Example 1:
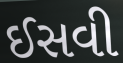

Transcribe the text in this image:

ઈસવી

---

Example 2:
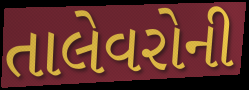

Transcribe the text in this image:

તાલેવરોની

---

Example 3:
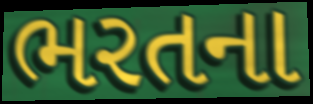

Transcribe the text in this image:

ભરતના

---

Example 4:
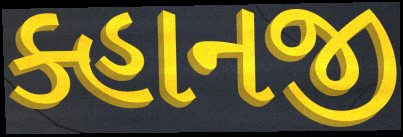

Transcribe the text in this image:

ક્હાનજી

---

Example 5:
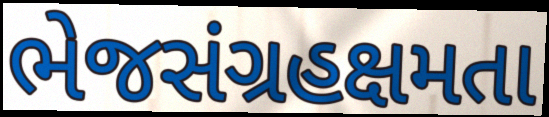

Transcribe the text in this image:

ભેજસંગ્રહક્ષમતા